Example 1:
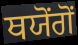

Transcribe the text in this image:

ਥਯੋਂਗੋਂ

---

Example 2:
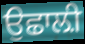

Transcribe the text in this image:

ਉਛਾਲ਼ੀ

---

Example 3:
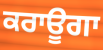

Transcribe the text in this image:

ਕਰਾਊਗਾ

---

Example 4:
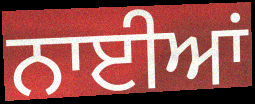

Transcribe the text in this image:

ਨਾਈਆਂ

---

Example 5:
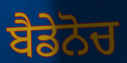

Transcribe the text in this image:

ਬੈਡੇਨੋਚ